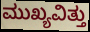
ಮುಖ್ಯವಿತ್ತು